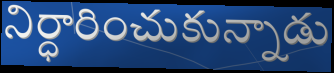
నిర్ధారించుకున్నాడు